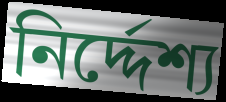
নির্দ্দেশ্য